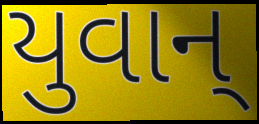
યુવાન્